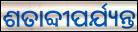
ଶତାବ୍ଦୀପର୍ଯ୍ୟନ୍ତ